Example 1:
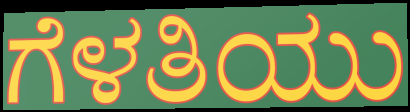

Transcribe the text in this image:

ಗೆಳತಿಯು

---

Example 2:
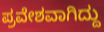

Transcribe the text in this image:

ಪ್ರವೇಶವಾಗಿದ್ದು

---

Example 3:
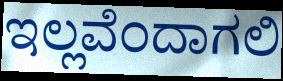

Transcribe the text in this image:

ಇಲ್ಲವೆಂದಾಗಲಿ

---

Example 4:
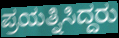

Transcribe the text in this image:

ಪ್ರಯತ್ನಿಸಿದ್ದರು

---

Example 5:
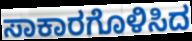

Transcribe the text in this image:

ಸಾಕಾರಗೊಳಿಸಿದ